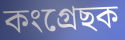
কংগ্ৰেছক